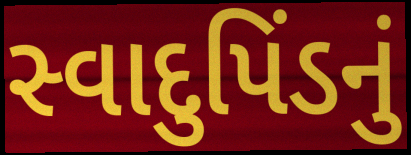
સ્વાદુપિંડનું